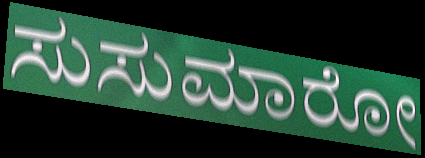
ಸುಸುಮಾರೋ